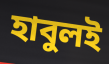
হাবুলই